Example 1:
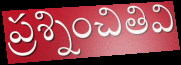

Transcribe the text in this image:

ప్రశ్నించితివి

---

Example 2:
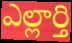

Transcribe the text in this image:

ఎల్లార్తి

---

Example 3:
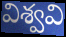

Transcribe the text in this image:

విశ్వవి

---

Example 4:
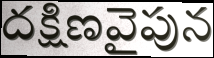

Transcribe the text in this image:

దక్షిణవైపున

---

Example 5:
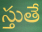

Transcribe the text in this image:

స్తుతే